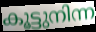
കൂട്ടുനിന്ന